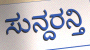
ಸುನ್ದರನ್ತಿ